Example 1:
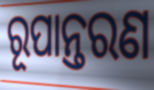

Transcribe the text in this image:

ରୂପାନ୍ତରଣ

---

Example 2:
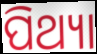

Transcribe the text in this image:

ପିଥ୍ୟା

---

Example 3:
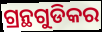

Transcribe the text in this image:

ଗ୍ରନ୍ଥଗୁଡିକର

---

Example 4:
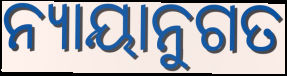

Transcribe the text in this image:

ନ୍ୟାୟାନୁଗତ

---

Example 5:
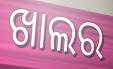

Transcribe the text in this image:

ଖାଲର